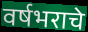
वर्षभराचे